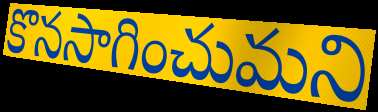
కొనసాగించుమని